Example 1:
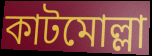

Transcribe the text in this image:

কাটমোল্লা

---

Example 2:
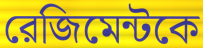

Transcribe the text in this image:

রেজিমেন্টকে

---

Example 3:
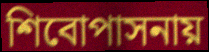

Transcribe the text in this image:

শিবোপাসনায়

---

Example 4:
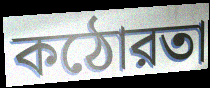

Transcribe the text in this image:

কঠোরতা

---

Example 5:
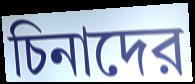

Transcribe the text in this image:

চিনাদের